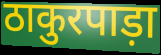
ठाकुरपाड़ा